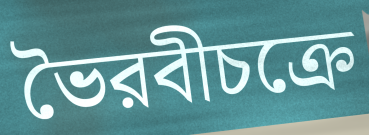
ভৈরবীচক্রে